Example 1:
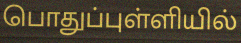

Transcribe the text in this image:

பொதுப்புள்ளியில்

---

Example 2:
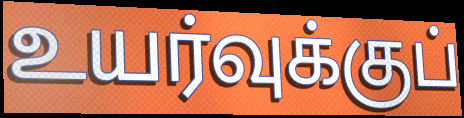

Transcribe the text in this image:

உயர்வுக்குப்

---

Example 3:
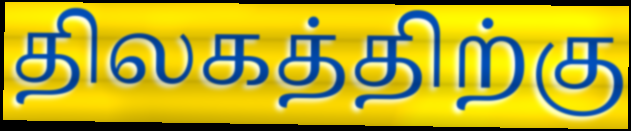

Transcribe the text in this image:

திலகத்திற்கு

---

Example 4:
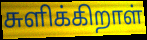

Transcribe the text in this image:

சுளிக்கிறாள்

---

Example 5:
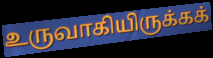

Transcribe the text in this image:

உருவாகியிருக்கக்